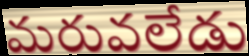
మరువలేడు